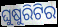
ଘୁଷୁରିଟିର